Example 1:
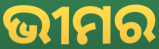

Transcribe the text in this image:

ଭୀମର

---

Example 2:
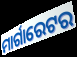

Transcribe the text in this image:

ମାର୍ଗାରେଟର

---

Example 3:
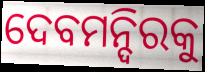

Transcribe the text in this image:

ଦେବମନ୍ଦିରକୁ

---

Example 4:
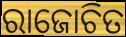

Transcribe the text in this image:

ରାଜୋଚିତ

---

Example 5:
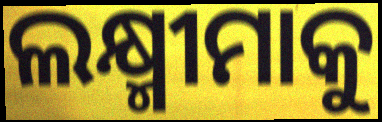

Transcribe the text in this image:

ଲକ୍ଷ୍ମୀମାକୁ